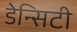
डेन्सिटी